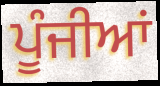
ਪੂੰਜੀਆਂ